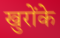
खुरोंके